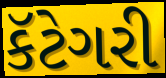
કૅટેગરી